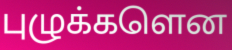
புழுக்களென